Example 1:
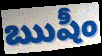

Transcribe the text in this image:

ఋషీం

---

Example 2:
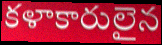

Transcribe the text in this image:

కళాకారులైన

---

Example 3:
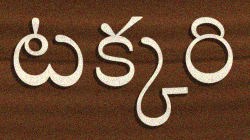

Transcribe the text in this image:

టక్కరి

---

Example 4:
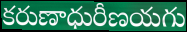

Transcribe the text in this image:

కరుణాధురీణయగు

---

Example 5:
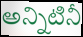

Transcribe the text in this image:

అన్నిటినీ